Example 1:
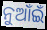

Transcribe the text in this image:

ନୁଆଁଇଁ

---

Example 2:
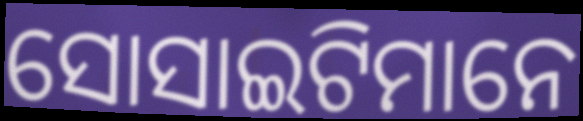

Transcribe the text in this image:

ସୋସାଇଟିମାନେ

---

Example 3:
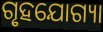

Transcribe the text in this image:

ଗୃହଯୋଗ୍ୟା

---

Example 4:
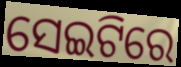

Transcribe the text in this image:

ସେଇଟିରେ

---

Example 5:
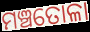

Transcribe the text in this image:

ମଞ୍ଚତୋଳା